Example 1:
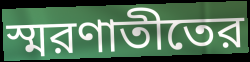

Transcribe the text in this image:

স্মরণাতীতের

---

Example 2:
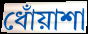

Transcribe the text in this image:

ধোঁয়াশা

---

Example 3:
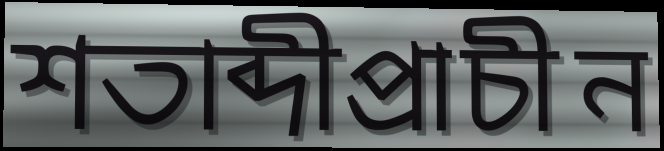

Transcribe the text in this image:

শতাব্দীপ্রাচীন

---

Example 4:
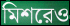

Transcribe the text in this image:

মিশরেও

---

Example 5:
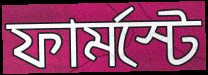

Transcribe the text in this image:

ফার্মস্টে